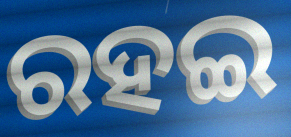
ରହଇ